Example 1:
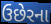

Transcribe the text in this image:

ઉછેરના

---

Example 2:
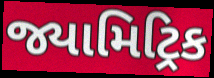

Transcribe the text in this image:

જ્યામિટ્રિક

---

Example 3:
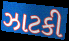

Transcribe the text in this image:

ઝાટકી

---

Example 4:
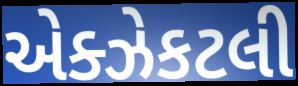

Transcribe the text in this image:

એક્ઝેકટલી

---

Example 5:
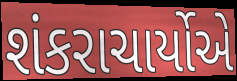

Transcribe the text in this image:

શંકરાચાર્યોએ